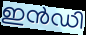
ഇൻഡി